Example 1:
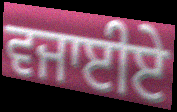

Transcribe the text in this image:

ਵਜਾਈਏ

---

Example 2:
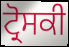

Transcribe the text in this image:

ਟ੍ਰੋਸਕੀ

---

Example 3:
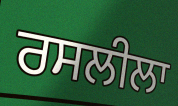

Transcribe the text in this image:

ਰਸਲੀਲਾ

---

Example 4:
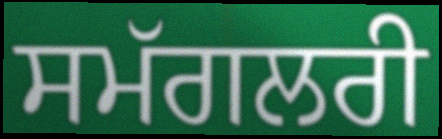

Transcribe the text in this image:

ਸਮੱਗਲਰੀ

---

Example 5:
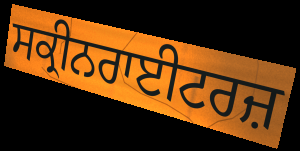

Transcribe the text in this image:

ਸਕ੍ਰੀਨਰਾਈਟਰਜ਼